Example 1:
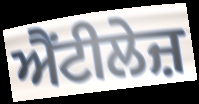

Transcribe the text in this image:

ਐਂਟੀਲੇਜ਼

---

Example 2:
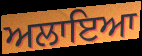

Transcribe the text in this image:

ਅਲਾਇਆ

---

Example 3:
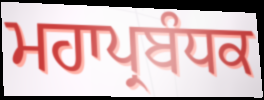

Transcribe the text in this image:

ਮਹਾਪ੍ਰਬੰਧਕ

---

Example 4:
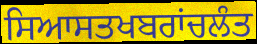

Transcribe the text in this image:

ਸਿਆਸਤਖਬਰਾਂਚਲੰਤ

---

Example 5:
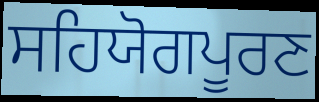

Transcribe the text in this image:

ਸਹਿਯੋਗਪੂਰਣ